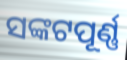
ସଙ୍କଟପୂର୍ଣ୍ଣ